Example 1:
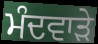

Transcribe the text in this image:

ਮੰਦਵਾੜੇ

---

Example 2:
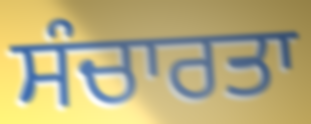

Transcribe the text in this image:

ਸੰਚਾਰਤਾ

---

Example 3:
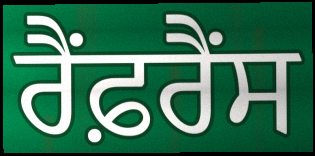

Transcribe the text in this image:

ਰੈਂਫ਼ਰੈਂਸ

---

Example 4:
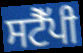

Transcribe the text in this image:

ਸਟੈੱਪੀ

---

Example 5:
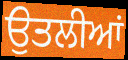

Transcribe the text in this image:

ਉਤਲੀਆਂ